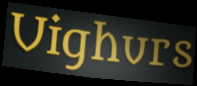
Uighurs